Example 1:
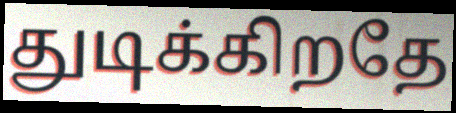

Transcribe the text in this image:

துடிக்கிறதே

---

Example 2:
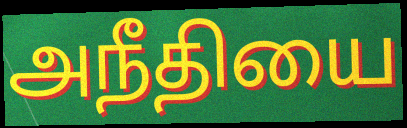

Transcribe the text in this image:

அநீதியை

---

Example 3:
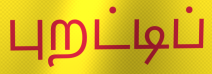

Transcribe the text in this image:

புறட்டிப்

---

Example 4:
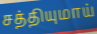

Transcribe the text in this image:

சத்தியுமாய்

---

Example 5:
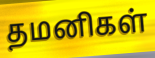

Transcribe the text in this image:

தமனிகள்